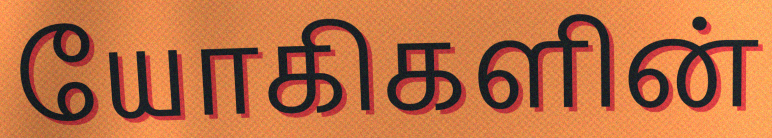
யோகிகளின்